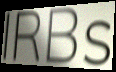
IRBs